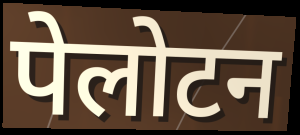
पेलोटन